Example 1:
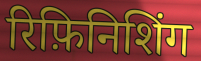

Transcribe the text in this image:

रिफ़िनिशिंग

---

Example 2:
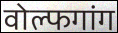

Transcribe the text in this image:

वोल्फगांग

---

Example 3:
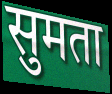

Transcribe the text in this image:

सुमता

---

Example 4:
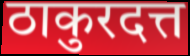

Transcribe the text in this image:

ठाकुरदत्त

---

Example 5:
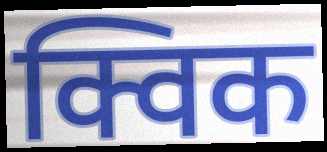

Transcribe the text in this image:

क्विक